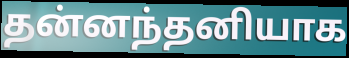
தன்னந்தனியாக